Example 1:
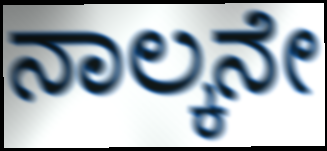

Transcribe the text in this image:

ನಾಲ್ಕನೇ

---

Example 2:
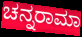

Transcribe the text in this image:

ಚನ್ನರಾಮಾ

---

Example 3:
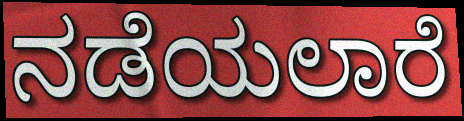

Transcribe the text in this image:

ನಡೆಯಲಾರೆ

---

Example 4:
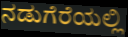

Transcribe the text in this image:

ನಡುಗೆರೆಯಲ್ಲಿ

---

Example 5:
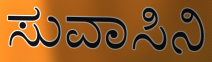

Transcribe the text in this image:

ಸುವಾಸಿನಿ